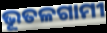
ଭୂତଳଗାମୀ